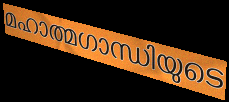
മഹാത്മഗാന്ധിയുടെ